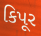
કિપૂર